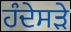
ਹੰਦੇਸੜੇ